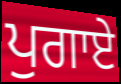
ਪੁਗਾਏ